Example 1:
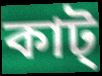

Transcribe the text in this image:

কাট্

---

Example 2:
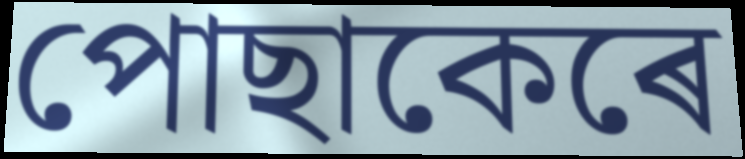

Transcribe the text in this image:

পোছাকেৰে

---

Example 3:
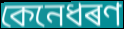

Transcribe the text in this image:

কেনেধৰণ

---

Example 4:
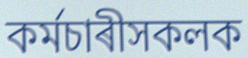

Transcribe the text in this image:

কৰ্মচাৰীসকলক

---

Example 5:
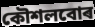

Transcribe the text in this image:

কৌশলবোৰ